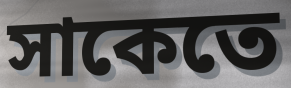
সাকেতে